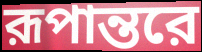
রূপান্তরে